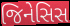
જિનેસિસ